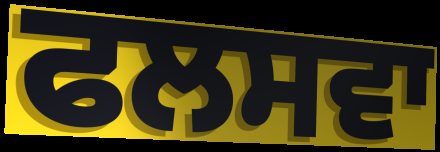
ਫਲਸਵਾ